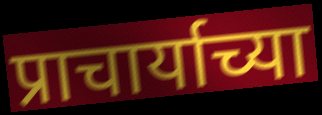
प्राचार्याच्या